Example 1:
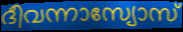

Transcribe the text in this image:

ദീവന്നാസ്യോസ്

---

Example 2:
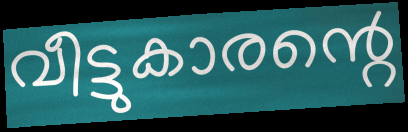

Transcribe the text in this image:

വീട്ടുകാരന്റെ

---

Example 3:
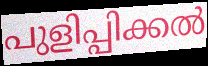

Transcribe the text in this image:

പുളിപ്പിക്കൽ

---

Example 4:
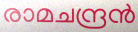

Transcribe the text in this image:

രാമചന്ദ്രൻ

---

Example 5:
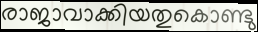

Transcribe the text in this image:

രാജാവാക്കിയതുകൊണ്ടു